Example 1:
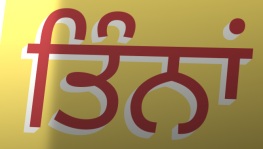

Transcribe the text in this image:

ਤਿੰਨਾਂ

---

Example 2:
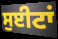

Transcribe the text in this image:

ਸੁਈਟਾਂ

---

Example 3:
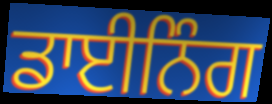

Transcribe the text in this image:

ਡਾਈਨਿੰਗ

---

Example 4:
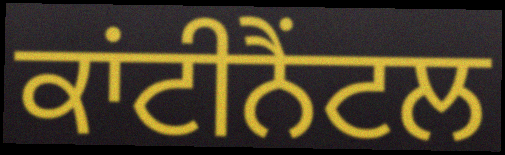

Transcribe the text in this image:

ਕਾਂਟੀਨੈਂਟਲ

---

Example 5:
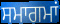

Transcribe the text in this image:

ਸਮਾਗਮਾਂ